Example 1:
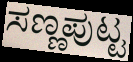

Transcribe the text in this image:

ಸಣ್ಣಪುಟ್ಟ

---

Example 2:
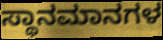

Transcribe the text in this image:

ಸ್ಥಾನಮಾನಗಳ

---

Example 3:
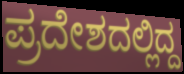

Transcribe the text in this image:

ಪ್ರದೇಶದಲ್ಲಿದ್ದ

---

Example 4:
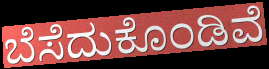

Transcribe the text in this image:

ಬೆಸೆದುಕೊಂಡಿವೆ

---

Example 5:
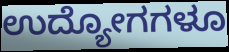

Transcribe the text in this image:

ಉದ್ಯೋಗಗಳೂ